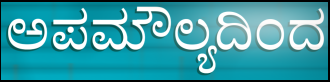
ಅಪಮೌಲ್ಯದಿಂದ